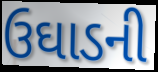
ઉઘાડની